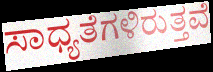
ಸಾಧ್ಯತೆಗಳಿರುತ್ತವೆ